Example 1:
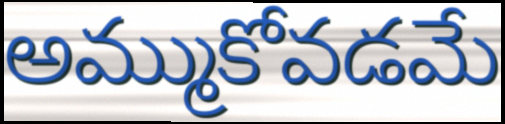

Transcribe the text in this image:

అమ్ముకోవడమే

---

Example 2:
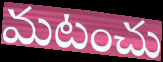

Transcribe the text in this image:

మటంచు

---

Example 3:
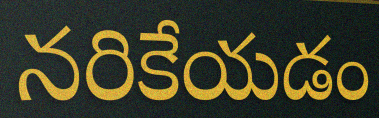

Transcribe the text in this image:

నరికేయడం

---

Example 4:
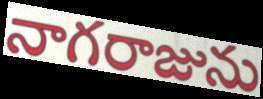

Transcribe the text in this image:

నాగరాజును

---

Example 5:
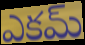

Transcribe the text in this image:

ఎకమ్